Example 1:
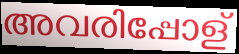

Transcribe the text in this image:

അവരിപ്പോള്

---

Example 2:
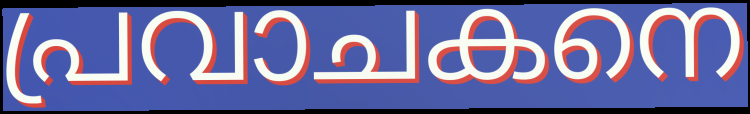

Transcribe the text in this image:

പ്രവാചകനെ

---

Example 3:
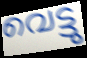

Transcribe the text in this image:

വെട്ടു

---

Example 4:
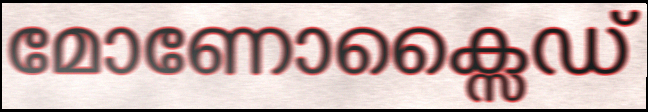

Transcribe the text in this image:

മോണോക്സൈഡ്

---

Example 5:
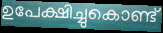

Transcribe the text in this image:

ഉപേക്ഷിച്ചുകൊണ്ട്